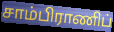
சாம்பிராணிப்